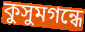
কুসুমগন্ধে